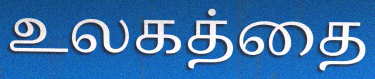
உலகத்தை